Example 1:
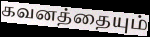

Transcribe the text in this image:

கவனத்தையும்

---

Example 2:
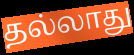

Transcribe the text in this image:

தல்லாது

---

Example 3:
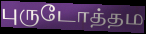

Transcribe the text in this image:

புருடோத்தம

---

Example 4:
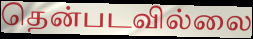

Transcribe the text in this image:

தென்படவில்லை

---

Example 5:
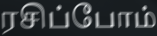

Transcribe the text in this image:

ரசிப்போம்